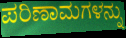
ಪರಿಣಾಮಗಳನ್ನು